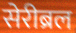
सेरीब्रल